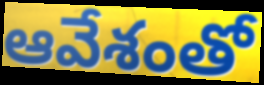
ఆవేశంతో